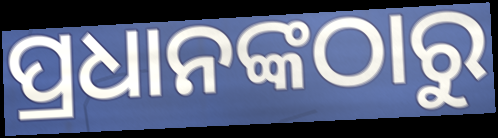
ପ୍ରଧାନଙ୍କଠାରୁ